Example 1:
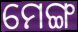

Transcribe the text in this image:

ମେଙ୍ଗ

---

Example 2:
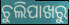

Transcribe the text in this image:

ଚୁଲିପାଖରୁ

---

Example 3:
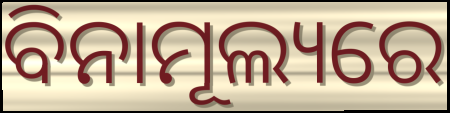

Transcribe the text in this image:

ବିନାମୂଲ୍ୟରେ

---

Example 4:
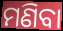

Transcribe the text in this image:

ମଣିବା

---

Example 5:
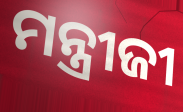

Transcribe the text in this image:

ମନ୍ତ୍ରୀଜୀ